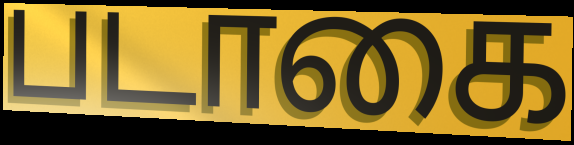
படாகை